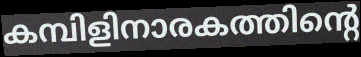
കമ്പിളിനാരകത്തിന്റെ